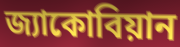
জ্যাকোবিয়ান